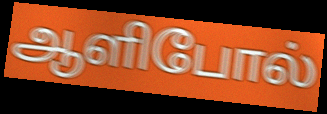
ஆளிபோல்